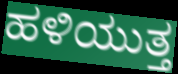
ಹಳಿಯುತ್ತ